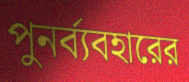
পুনর্ব্যবহারের